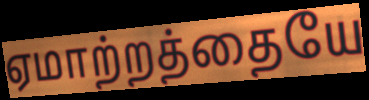
ஏமாற்றத்தையே